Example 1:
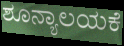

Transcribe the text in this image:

ಶೂನ್ಯಾಲಯಕೆ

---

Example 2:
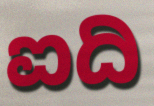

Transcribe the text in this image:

ಐದಿ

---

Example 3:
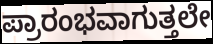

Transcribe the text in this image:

ಪ್ರಾರಂಭವಾಗುತ್ತಲೇ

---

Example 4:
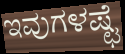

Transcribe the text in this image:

ಇವುಗಳಷ್ಟೆ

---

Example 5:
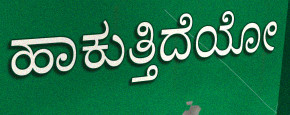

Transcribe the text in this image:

ಹಾಕುತ್ತಿದೆಯೋ